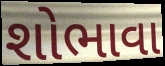
શોભાવા